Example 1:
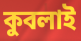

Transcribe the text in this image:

কুবলাই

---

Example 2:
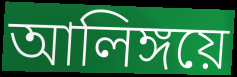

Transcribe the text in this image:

আলিঙ্গয়ে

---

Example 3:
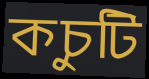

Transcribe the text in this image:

কচুটি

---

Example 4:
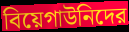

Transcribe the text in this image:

বিয়েগাউনিদের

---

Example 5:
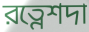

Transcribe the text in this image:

রত্নেশদা